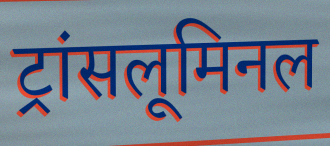
ट्रांसलूमिनल